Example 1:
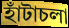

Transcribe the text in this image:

হাঁটাচলা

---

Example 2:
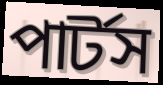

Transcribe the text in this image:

পার্টস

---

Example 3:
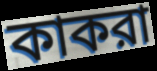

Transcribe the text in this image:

কাকরা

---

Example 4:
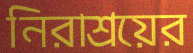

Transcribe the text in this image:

নিরাশ্রয়ের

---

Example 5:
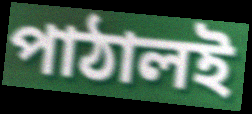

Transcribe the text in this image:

পাঠালই